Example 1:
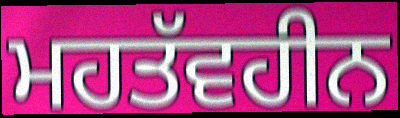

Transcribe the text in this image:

ਮਹਤੱਵਹੀਨ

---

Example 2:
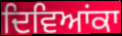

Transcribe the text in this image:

ਦਿਵਿਆਂਕਾ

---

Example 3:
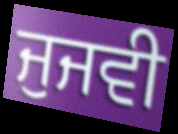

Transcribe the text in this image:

ਜੁਜਵੀ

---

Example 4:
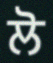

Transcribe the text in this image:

ਲੋ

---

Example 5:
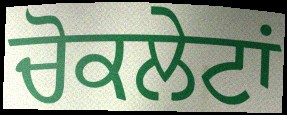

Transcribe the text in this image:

ਚੋਕਲੇਟਾਂ